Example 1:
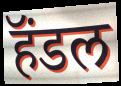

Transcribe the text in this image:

हॅंडल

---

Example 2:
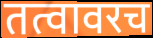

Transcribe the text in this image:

तत्वावरच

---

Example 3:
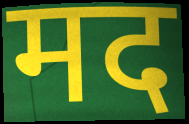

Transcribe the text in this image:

मद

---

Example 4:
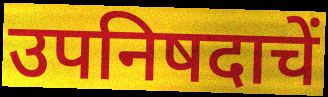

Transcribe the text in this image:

उपनिषदाचें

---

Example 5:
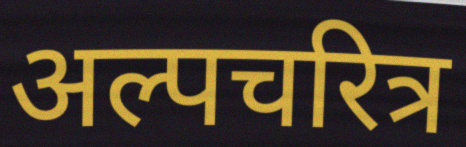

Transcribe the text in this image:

अल्पचरित्र